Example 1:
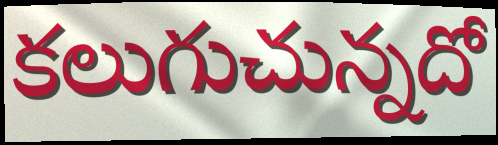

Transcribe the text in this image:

కలుగుచున్నదో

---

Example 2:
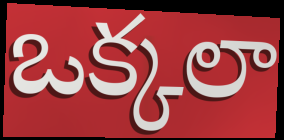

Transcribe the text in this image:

ఒక్కలా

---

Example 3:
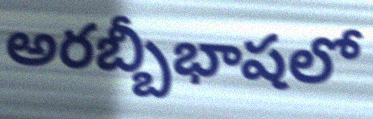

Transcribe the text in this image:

అరబ్బీభాషలో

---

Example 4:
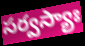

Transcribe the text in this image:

సర్వస్యాః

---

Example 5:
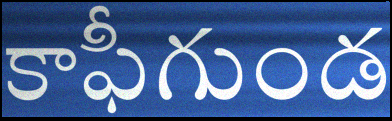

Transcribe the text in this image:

కాఫీగుండ